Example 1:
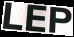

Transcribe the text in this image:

LEP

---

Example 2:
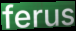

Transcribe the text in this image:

ferus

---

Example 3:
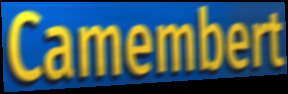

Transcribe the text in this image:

Camembert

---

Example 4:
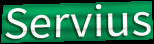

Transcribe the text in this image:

Servius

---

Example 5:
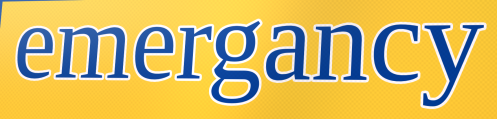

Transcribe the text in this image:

emergancy